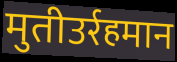
मुतीउर्रहमान